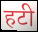
हटी